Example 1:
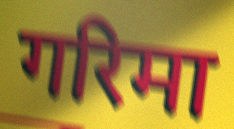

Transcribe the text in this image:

गरिमा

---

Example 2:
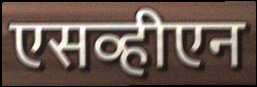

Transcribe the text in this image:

एसव्हीएन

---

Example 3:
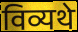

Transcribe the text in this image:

विव्यथे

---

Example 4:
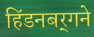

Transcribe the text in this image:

हिंडनबर्गने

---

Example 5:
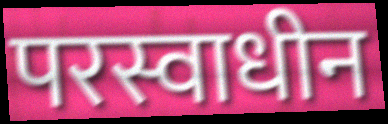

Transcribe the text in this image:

परस्वाधीन